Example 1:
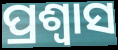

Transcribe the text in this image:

ପ୍ରଶ୍ୱାସ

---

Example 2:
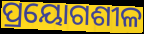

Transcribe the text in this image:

ପ୍ରୟୋଗଶୀଳ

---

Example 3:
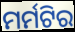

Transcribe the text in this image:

ମର୍ମଟିର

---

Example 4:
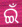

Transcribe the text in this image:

ଇଁ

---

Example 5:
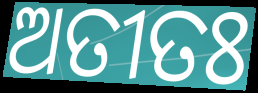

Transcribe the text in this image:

ଅତୀତଃ